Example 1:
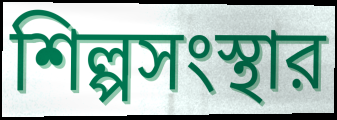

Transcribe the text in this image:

শিল্পসংস্থার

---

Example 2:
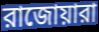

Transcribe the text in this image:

রাজোয়ারা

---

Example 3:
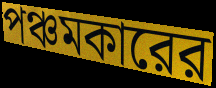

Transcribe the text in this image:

পঞ্চমকারের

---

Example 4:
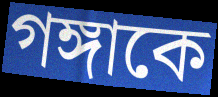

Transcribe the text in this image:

গঙ্গাকে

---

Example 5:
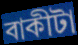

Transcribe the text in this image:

বাকীটা